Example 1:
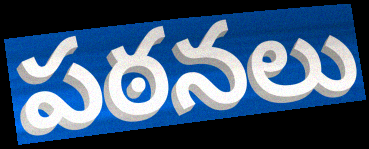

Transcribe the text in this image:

పఠనలు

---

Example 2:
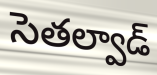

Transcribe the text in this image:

సెతల్వాడ్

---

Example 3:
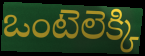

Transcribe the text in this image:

ఒంటెలెక్కి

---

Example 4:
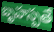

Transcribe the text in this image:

బృహస్పతే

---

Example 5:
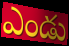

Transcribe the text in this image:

ఎండు